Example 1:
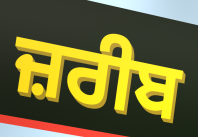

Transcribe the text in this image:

ਜ਼ਰੀਬ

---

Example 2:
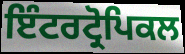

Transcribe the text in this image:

ਇੰਟਰਟ੍ਰੋਪਿਕਲ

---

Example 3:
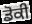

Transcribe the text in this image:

ਡੋਕੀ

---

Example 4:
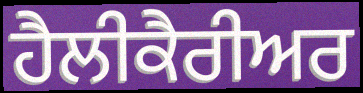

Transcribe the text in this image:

ਹੈਲੀਕੈਰੀਅਰ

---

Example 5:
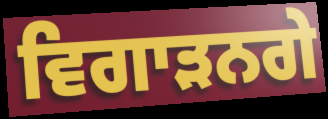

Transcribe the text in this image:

ਵਿਗਾੜਨਗੇ